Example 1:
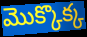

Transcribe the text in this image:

మొక్కొక్క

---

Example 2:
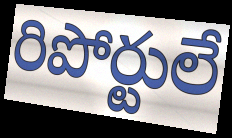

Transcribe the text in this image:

రిపోర్టులే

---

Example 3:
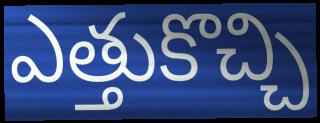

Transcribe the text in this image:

ఎత్తుకొచ్చి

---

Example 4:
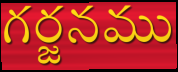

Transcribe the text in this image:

గర్జనము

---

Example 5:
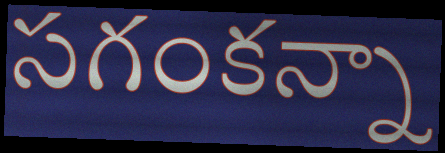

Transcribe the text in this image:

సగంకన్నా